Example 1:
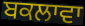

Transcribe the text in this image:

ਬਕਲਾਵਾ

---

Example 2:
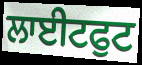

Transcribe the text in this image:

ਲਾਈਟਫੁਟ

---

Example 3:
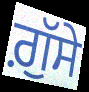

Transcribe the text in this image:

ਗ਼ੁੱਸੇ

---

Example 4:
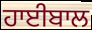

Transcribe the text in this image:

ਹਾਈਬਾਲ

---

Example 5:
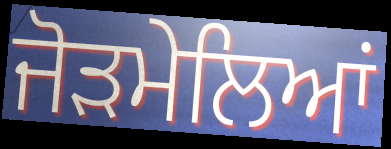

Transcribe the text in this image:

ਜੋੜਮੇਲਿਆਂ